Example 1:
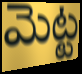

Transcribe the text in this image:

మెట్ట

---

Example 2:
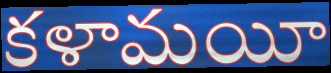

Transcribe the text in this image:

కళామయీ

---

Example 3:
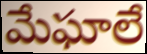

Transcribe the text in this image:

మేఘాలే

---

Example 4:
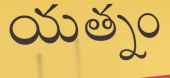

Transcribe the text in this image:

యత్నం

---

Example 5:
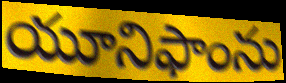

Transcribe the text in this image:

యూనిఫాంను